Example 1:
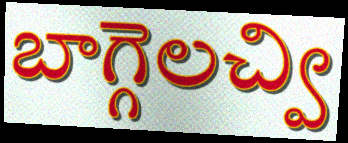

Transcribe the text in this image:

బాగ్గెలచ్వి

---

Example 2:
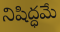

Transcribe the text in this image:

నిషిద్ధమే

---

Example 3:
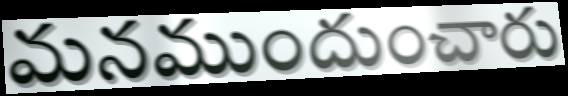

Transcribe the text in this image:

మనముందుంచారు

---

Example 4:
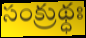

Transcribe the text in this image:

సంక్రుథ్ధః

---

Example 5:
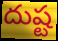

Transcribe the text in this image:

దుష్ట